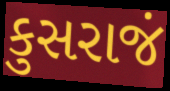
કુસરાજં